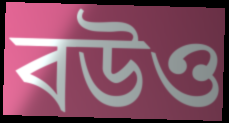
বউও